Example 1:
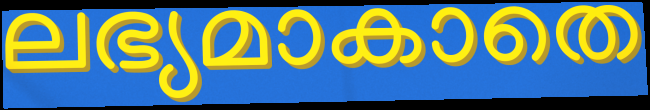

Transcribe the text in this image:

ലഭ്യമാകാതെ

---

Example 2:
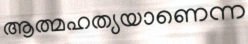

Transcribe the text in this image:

ആത്മഹത്യയാണെന്ന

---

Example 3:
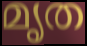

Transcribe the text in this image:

മൃത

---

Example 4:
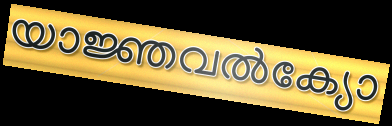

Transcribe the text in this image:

യാജ്ഞവൽക്യോ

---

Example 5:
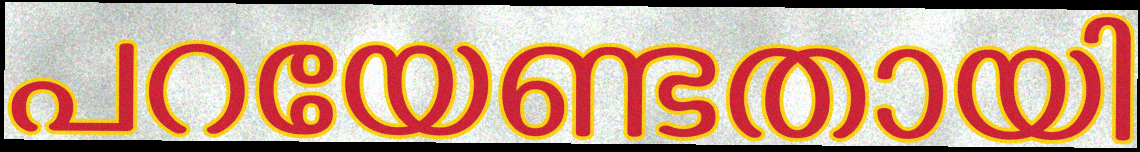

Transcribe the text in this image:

പറയേണ്ടതായി